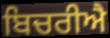
ਬਿਚਰੀਐ